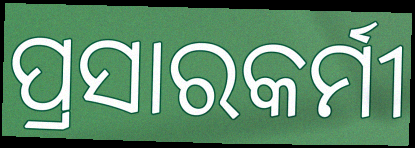
ପ୍ରସାରକର୍ମୀ